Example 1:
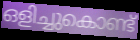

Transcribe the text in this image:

ഒളിച്ചുകൊണ്ട്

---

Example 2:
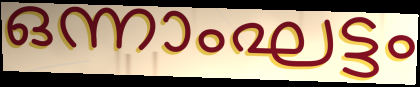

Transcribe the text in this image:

ഒന്നാംഘട്ടം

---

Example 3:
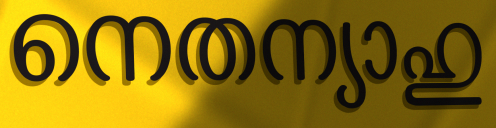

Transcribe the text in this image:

നെതന്യാഹു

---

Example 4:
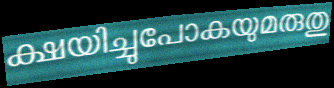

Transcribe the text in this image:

ക്ഷയിച്ചുപോകയുമരുതു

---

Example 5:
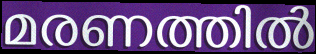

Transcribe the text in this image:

മരണത്തിൽ